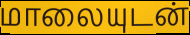
மாலையுடன்